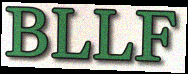
BLLF